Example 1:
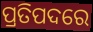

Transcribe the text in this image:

ପ୍ରତିପଦରେ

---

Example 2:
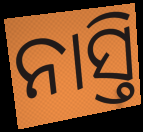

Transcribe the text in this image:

ନାସ୍ତି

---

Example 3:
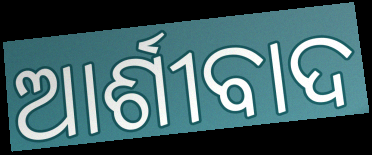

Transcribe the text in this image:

ଆର୍ଶୀବାଦ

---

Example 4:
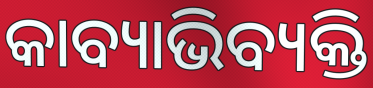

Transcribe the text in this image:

କାବ୍ୟାଭିବ୍ୟକ୍ତି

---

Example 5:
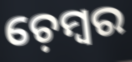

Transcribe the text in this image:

ଚ଼େମ୍ୱର